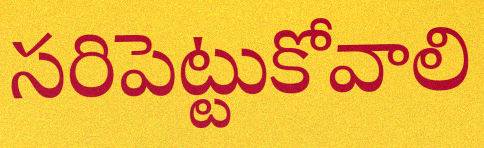
సరిపెట్టుకోవాలి